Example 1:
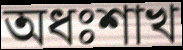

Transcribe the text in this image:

অধঃশাখ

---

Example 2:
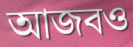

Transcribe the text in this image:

আজবও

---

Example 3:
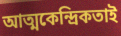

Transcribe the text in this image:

আত্মকেন্দ্রিকতাই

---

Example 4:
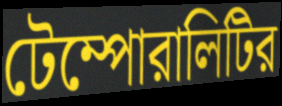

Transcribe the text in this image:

টেম্পোরালিটির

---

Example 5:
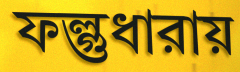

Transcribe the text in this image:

ফল্গুধারায়